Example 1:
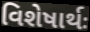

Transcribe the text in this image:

વિશેષાર્થઃ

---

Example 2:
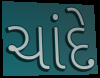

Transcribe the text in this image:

ચાંદે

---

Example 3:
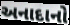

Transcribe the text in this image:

અનાદાનો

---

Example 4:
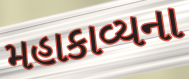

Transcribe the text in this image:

મહાકાવ્યના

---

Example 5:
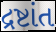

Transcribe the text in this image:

દ્રષ્ટાંત